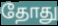
தோது